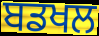
ਬਡਖਲ